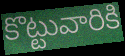
కొట్టువారికి